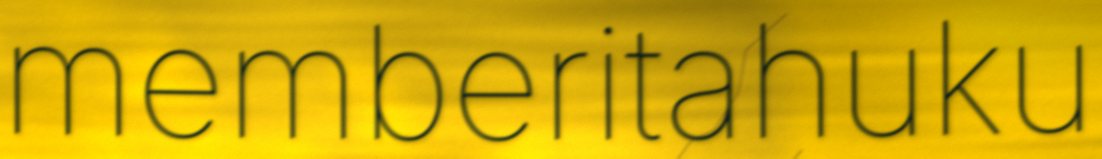
memberitahuku